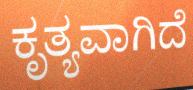
ಕೃತ್ಯವಾಗಿದೆ